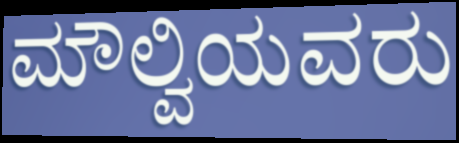
ಮೌಲ್ವಿಯವರು